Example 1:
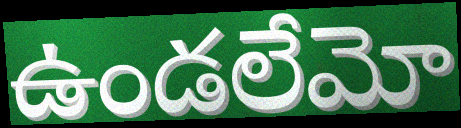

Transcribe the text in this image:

ఉండలేమో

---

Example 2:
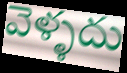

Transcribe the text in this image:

వెళ్ళదు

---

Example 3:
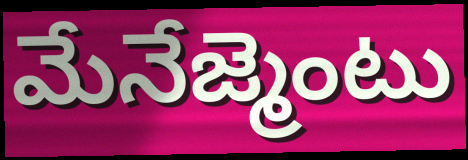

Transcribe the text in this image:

మేనేజ్మెంటు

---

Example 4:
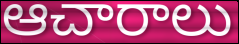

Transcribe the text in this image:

ఆచారాలు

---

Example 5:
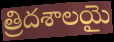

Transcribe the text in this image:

త్రిదశాలయై